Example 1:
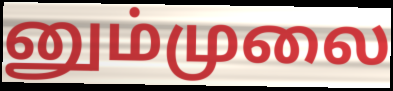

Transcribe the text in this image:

னும்முலை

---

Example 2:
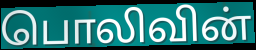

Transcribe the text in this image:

பொலிவின்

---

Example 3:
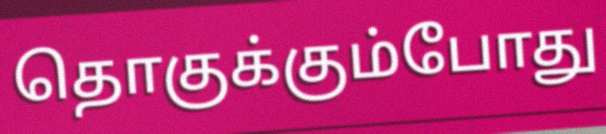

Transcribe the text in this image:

தொகுக்கும்போது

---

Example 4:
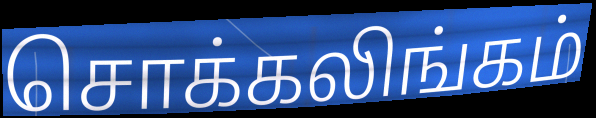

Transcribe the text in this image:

சொக்கலிங்கம்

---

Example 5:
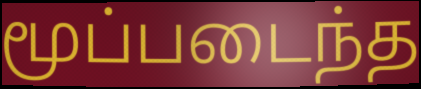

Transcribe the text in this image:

மூப்படைந்த